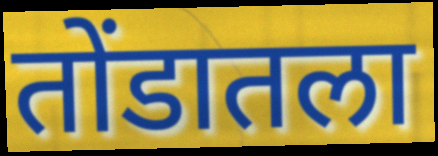
तोंडातला